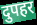
दुपहर